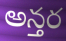
అన్తర